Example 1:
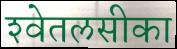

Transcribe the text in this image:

श्वेतलसीका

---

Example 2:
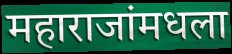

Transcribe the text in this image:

महाराजांमधला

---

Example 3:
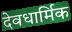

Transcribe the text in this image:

देवधार्मिक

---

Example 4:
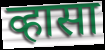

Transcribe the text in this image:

व्हासा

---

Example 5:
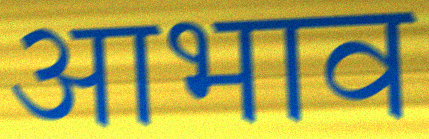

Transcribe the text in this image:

आभाव